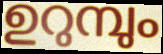
ഉറുമ്പും